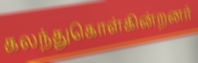
கலந்துகொள்கின்றனர்